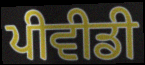
ਪੀਵੀਡੀ